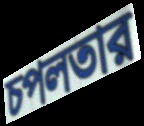
চপলতার